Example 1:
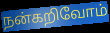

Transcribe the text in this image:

நன்கறிவோம்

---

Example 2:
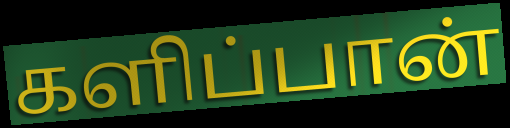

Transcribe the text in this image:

களிப்பான்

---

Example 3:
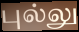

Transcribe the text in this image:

புல்லு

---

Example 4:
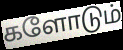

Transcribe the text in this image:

களோடும்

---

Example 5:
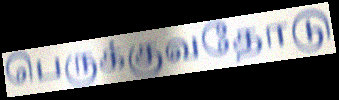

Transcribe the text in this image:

பெருக்குவதோடு